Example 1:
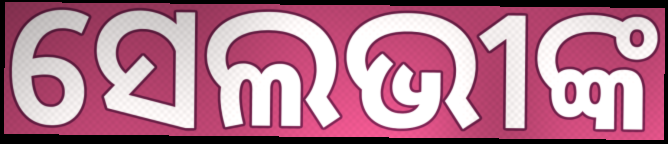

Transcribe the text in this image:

ସେଲଭୀଙ୍କ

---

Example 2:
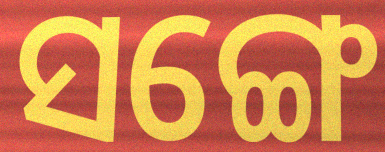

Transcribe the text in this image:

ସଙ୍ଗେ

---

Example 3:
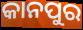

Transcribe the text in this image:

କାନପୁର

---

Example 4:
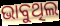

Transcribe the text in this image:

ଭାବୁଥିଲ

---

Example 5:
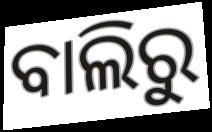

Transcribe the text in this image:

ବାଲିରୁ